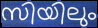
സിയിലും